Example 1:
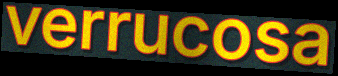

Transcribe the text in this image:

verrucosa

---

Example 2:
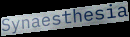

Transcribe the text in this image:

Synaesthesia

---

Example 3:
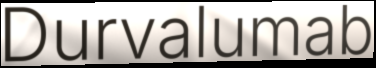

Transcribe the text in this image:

Durvalumab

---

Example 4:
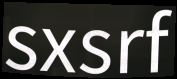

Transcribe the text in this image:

sxsrf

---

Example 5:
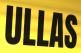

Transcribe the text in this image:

ULLAS